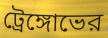
ট্রেঙ্গোভের